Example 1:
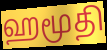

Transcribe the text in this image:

ஹமூதி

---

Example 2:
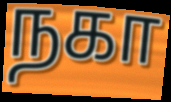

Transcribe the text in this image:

நகா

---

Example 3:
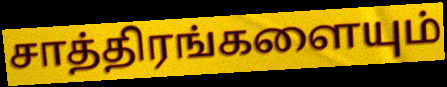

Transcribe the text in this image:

சாத்திரங்களையும்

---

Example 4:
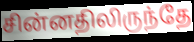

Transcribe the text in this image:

சின்னதிலிருந்தே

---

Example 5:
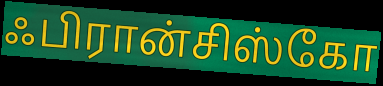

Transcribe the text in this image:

ஃபிரான்சிஸ்கோ